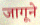
जागूने